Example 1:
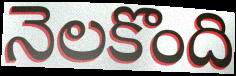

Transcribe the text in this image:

నెలకొంది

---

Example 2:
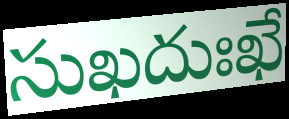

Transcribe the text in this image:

సుఖదుఃఖే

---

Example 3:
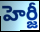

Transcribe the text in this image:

హెర్జీ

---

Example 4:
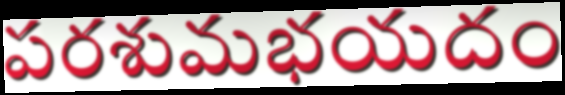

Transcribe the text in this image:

పరశుమభయదం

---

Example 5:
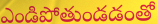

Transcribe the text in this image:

ఎండిపోతుండడంతో